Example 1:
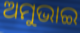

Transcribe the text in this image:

ଅମୁଭାଇ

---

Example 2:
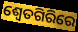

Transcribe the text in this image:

ଶ୍ୱେତଗିରିରେ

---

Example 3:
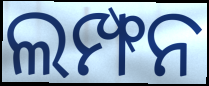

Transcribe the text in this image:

ଲମ୍ଫନ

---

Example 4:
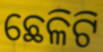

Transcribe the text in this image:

ଛେଳିଟି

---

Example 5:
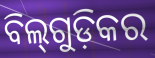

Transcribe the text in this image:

ବିଲ୍‌ଗୁଡ଼ିକର